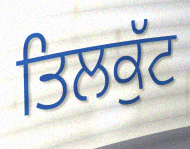
ਤਿਲਕੁੱਟ